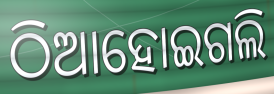
ଠିଆହୋଇଗଲି